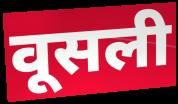
वूसली